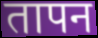
तापन